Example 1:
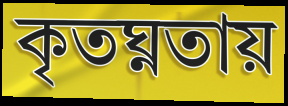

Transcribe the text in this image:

কৃতঘ্নতায়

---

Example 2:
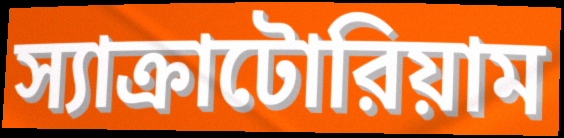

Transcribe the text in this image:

স্যাক্রাটোরিয়াম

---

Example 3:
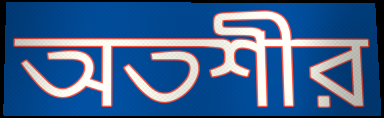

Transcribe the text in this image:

অতশীর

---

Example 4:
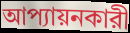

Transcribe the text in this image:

আপ্যায়নকারী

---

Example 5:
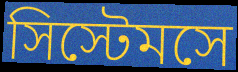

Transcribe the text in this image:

সিস্টেমসে